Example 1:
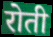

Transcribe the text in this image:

रोती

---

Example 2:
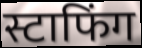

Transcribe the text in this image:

स्टाफिंग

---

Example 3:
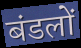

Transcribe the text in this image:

बंडलों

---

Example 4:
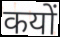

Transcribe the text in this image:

कयों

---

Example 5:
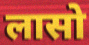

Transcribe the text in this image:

लासो